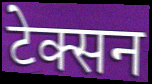
टेक्सन